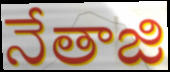
నేతాజి